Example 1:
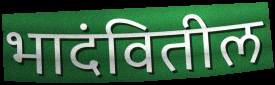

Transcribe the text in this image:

भादंवितील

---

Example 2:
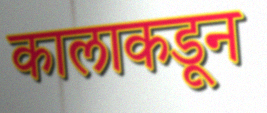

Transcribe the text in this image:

कालाकडून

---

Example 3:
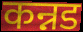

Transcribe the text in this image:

कन्नड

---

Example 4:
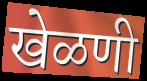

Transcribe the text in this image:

खेळणी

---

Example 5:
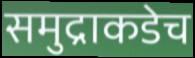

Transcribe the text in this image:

समुद्राकडेच